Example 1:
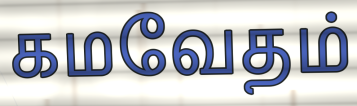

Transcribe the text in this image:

கமவேதம்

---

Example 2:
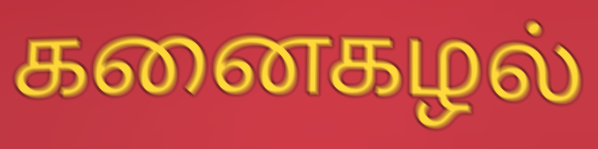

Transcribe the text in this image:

கனைகழல்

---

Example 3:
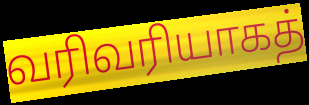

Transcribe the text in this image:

வரிவரியாகத்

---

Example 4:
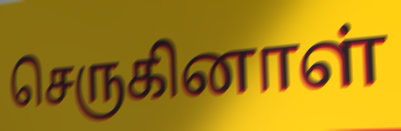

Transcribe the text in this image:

செருகினாள்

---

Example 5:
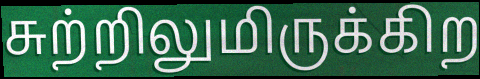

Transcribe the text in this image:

சுற்றிலுமிருக்கிற